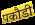
पकौडी